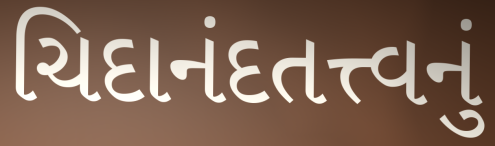
ચિદાનંદતત્ત્વનું